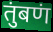
तुंबणं